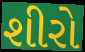
શીરો